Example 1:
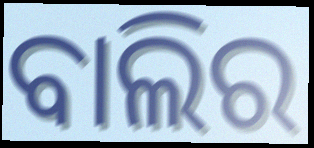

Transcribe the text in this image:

ବାଲିର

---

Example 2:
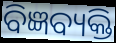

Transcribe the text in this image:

ବିଜ୍ଞବ୍ୟକ୍ତି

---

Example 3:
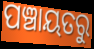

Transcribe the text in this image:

ପଞ୍ଚାୟତରୁ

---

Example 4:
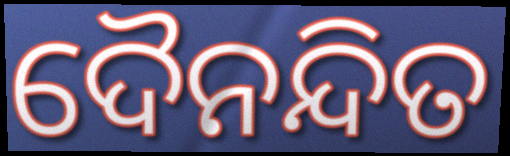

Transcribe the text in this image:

ଦୈନନ୍ଦିତ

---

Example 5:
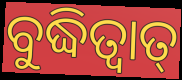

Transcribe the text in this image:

ବୁଦ୍ଧିତ୍ୱାତ୍